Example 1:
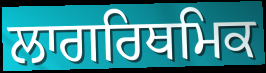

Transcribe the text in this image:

ਲਾਗਰਿਥਮਿਕ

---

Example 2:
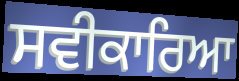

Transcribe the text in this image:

ਸਵੀਕਾਰਿਆ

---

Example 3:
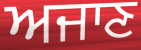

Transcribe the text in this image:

ਅਜਾਣ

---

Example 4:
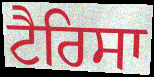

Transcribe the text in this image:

ਟੈਰਿਸਾ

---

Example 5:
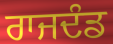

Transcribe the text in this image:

ਰਾਜਦੰਡ